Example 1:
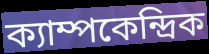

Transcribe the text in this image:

ক্যাম্পকেন্দ্রিক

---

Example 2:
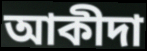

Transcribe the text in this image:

আকীদা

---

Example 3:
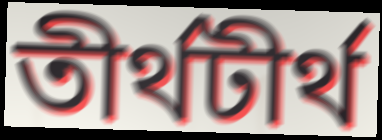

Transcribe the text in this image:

তীর্থটীর্থ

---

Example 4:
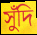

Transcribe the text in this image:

সুঁদি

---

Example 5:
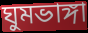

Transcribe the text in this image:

ঘুমভাঙ্গা